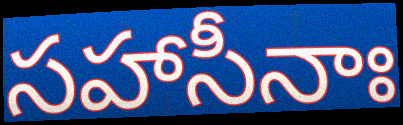
సహాసీనాః